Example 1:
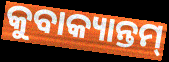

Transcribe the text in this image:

କୁବାକ୍ୟାନ୍ତମ୍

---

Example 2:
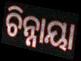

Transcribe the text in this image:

ଚିନ୍ନାୟା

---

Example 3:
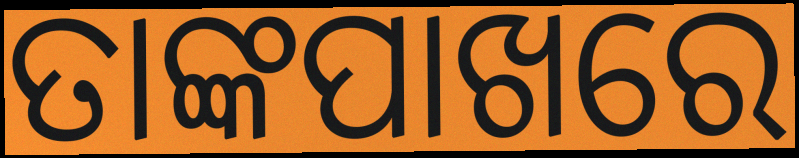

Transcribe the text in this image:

ତାଙ୍କପାଖରେ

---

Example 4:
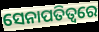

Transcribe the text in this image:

ସେନାପତିତ୍ୱରେ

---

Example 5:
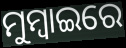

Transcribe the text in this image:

ମୁମ୍ୱାଇରେ